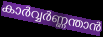
കാർവ്വർണ്ണന്താൻ